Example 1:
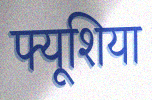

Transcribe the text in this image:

फ्यूशिया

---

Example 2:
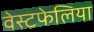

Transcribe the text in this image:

वेस्टफेलिया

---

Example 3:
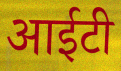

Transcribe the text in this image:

आईटी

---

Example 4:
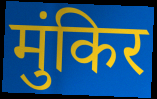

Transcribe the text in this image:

मुंकिर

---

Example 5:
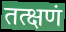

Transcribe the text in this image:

तत्क्षणं